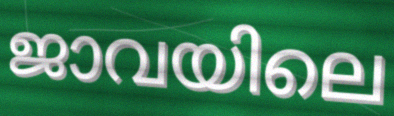
ജാവയിലെ